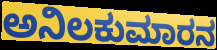
ಅನಿಲಕುಮಾರನ